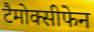
टैमोक्सीफेन